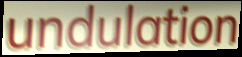
undulation